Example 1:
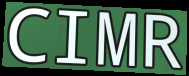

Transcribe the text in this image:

CIMR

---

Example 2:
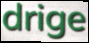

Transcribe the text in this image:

drige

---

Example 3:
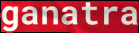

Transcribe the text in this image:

ganatra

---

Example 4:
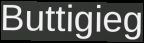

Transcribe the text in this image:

Buttigieg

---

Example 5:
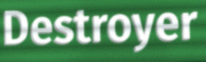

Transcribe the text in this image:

Destroyer